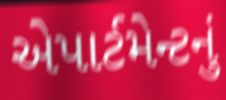
એપાર્ટમેન્ટનું